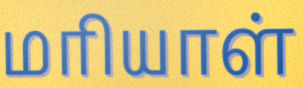
மரியாள்